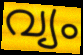
വ്യം